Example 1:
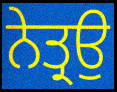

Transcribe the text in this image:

ਨੇਤ੍ਰਉ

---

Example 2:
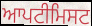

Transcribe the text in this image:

ਆਪਟੀਮਿਸਟ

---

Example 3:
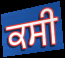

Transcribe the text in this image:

ਕਸੀ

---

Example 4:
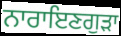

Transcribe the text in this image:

ਨਾਰਾਇਣਗੁੜਾ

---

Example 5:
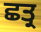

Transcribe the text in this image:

ਛਤ੍ਰ